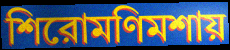
শিরোমণিমশায়